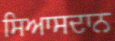
ਸਿਆਸਦਾਨ